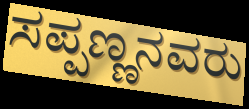
ಸಪ್ಪಣ್ಣನವರು